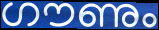
ഗൗണും